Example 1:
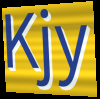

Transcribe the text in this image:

Kjy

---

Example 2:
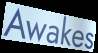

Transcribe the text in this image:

Awakes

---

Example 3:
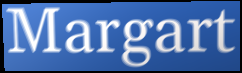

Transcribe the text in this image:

Margart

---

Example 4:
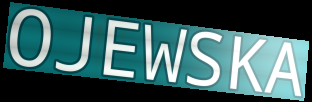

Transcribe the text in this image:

OJEWSKA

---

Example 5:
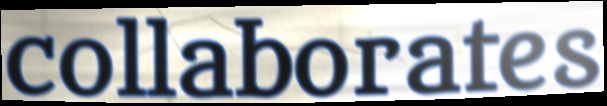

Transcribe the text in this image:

collaborates